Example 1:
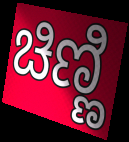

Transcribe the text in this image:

ಚಿಣ್ಣಿ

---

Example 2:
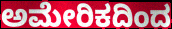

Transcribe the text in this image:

ಅಮೇರಿಕದಿಂದ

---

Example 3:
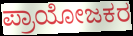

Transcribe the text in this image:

ಪ್ರಾಯೋಜಕರ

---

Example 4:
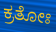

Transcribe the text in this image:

ಕ್ರತೋಃ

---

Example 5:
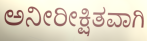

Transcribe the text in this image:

ಅನೀರೀಕ್ಷಿತವಾಗಿ